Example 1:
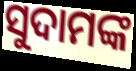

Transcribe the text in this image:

ସୁଦାମଙ୍କ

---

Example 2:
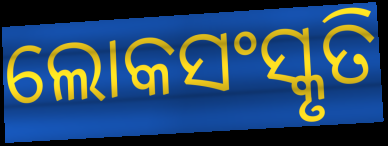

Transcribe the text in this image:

ଲୋକସଂସ୍କୃତି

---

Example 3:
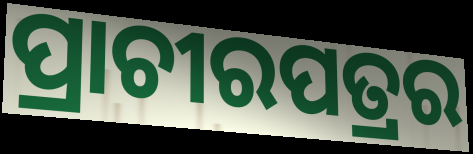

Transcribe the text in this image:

ପ୍ରାଚୀରପତ୍ରର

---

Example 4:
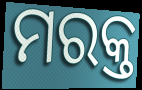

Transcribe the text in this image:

ମରକ୍ତ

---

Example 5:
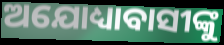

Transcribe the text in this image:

ଅଯୋଧ୍ୟାବାସୀଙ୍କୁ